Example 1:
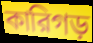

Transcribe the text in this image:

কারিগড়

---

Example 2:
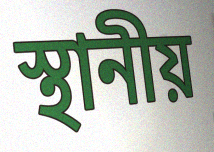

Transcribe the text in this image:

স্থানীয়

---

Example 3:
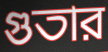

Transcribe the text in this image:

গুতার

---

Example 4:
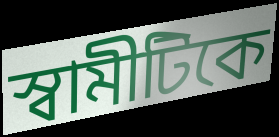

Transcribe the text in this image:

স্বামীটিকে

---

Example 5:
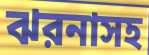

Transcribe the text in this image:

ঝরনাসহ